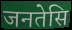
जनतेसि